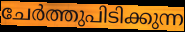
ചേർത്തുപിടിക്കുന്ന